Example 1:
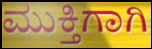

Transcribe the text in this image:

ಮುಕ್ತಿಗಾಗಿ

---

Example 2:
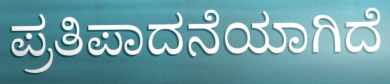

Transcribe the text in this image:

ಪ್ರತಿಪಾದನೆಯಾಗಿದೆ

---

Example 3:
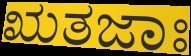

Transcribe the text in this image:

ಋತಜಾಃ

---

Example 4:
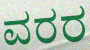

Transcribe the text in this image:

ವರರ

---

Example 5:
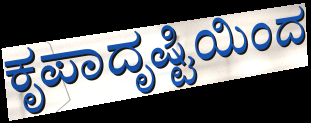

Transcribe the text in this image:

ಕೃಪಾದೃಷ್ಟಿಯಿಂದ